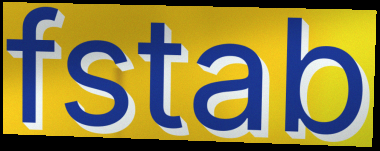
fstab